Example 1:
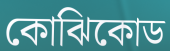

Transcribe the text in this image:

কোঝিকোড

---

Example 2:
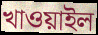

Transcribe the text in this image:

খাওয়াইল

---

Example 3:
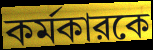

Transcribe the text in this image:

কর্মকারকে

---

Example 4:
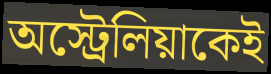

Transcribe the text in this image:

অস্ট্রেলিয়াকেই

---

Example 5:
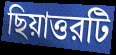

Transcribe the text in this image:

ছিয়াত্তরটি